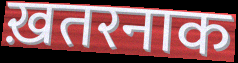
ख़तरनाक